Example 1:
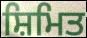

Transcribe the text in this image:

ਸ਼ਿਮਿਤ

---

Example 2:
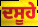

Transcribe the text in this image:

ਦਸੂਹੇ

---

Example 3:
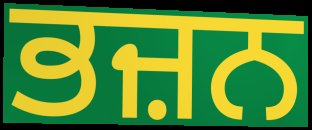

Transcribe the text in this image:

ਭਜ਼ਨ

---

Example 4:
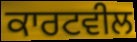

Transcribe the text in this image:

ਕਾਰਟਵੀਲ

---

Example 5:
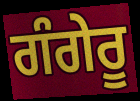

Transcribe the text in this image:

ਗੰਗੇਰੂ